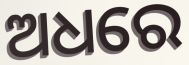
ଅଧରେ